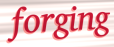
forging